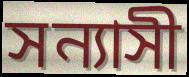
সন্যাসী